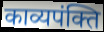
काव्यपंक्ति